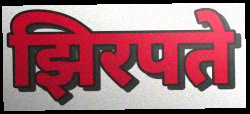
झिरपते